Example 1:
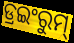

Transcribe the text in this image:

ଡ୍ରଇଂରୁମ୍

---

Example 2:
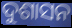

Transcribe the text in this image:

ଦୁଶାସନ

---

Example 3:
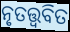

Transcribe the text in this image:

ନୃତତ୍ତ୍ୱବିତ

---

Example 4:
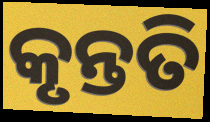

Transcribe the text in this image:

କୃନ୍ତତି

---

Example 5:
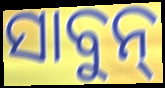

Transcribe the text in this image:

ସାବୁନ୍